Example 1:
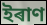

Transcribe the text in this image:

ইৰাণ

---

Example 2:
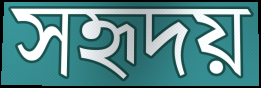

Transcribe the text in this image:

সহৃদয়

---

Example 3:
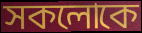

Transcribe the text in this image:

সকলোকে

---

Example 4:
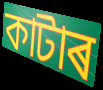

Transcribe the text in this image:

কাটাৰ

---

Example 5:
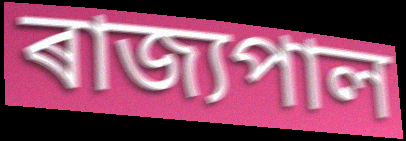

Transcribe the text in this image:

ৰাজ্যপাল